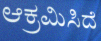
ಆಕ್ರಮಿಸಿದೆ